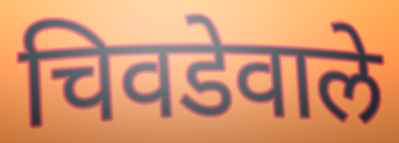
चिवडेवाले